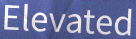
Elevated